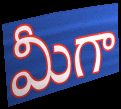
మీగా